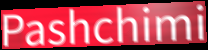
Pashchimi